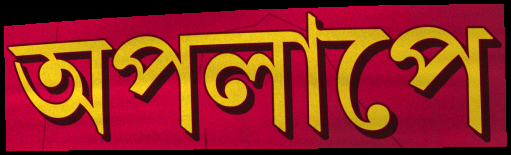
অপলাপে